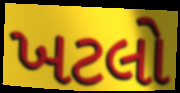
ખટલો